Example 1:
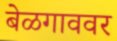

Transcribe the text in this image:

बेळगाववर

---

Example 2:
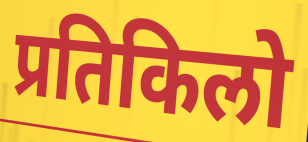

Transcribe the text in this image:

प्रतिकिलो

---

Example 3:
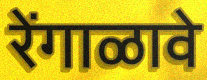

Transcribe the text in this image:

रेंगाळावे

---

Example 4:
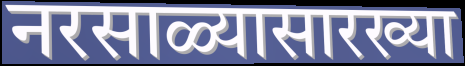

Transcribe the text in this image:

नरसाळ्यासारख्या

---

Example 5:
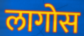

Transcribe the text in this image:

लागोस